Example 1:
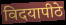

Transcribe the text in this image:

विदयापीठे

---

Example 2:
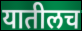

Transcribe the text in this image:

यातीलच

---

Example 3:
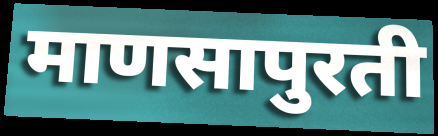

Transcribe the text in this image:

माणसापुरती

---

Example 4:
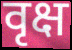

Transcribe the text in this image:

वृक्ष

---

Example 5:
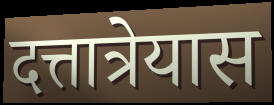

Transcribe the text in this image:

दत्तात्रेयास